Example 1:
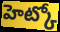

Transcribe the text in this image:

హెట్కో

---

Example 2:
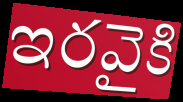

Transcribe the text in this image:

ఇరవైకి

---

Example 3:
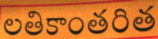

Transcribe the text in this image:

లతికాంతరిత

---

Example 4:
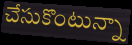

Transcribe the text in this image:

చేసుకొంటున్నా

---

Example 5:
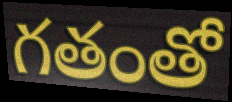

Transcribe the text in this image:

గతంతో